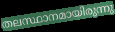
തലസ്ഥാനമായിരുന്നു